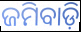
ଜମିବାଡ଼ି